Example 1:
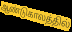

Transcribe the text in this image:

ஆண்டுகாலத்தில்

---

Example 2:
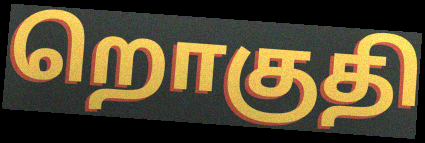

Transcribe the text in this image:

றொகுதி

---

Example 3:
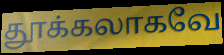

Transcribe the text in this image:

தூக்கலாகவே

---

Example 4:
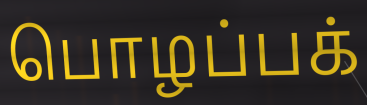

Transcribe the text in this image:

பொழப்பக்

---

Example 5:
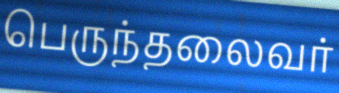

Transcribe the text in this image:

பெருந்தலைவர்